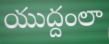
యుద్దంలా